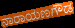
ನಾರಾಯಣಗೌಡ